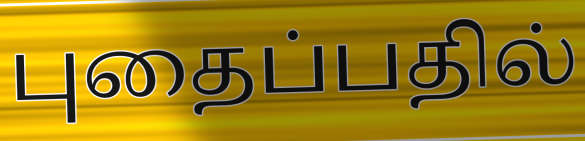
புதைப்பதில்